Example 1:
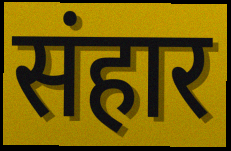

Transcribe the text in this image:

संहार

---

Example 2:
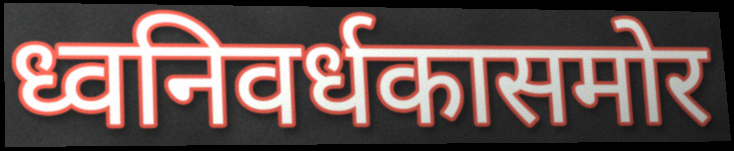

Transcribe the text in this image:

ध्वनिवर्धकासमोर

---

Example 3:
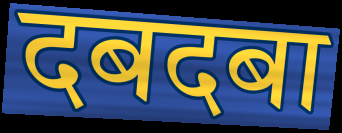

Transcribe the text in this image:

दबदबा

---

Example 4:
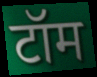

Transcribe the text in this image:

टॉम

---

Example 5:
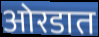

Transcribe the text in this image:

ओरडात